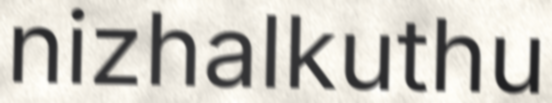
nizhalkuthu